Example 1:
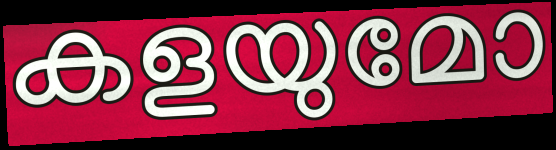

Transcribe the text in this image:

കളയുമോ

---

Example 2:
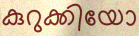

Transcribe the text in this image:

കുറുക്കിയോ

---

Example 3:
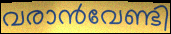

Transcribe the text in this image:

വരാൻവേണ്ടി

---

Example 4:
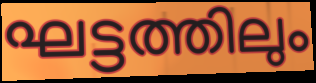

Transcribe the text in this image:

ഘട്ടത്തിലും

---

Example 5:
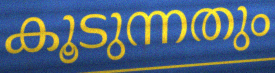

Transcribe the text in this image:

കൂടുന്നതും